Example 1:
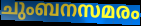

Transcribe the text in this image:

ചുംബനസമരം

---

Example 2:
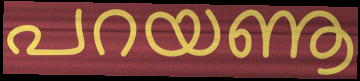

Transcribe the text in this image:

പറയണൂ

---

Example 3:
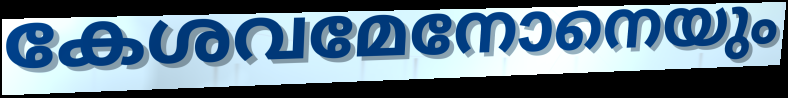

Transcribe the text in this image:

കേശവമേനോനെയും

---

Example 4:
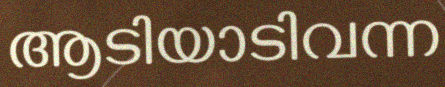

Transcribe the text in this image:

ആടിയാടിവന്ന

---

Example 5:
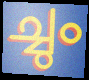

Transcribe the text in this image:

ച്ചും